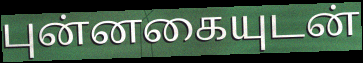
புன்னகையுடன்